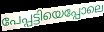
പേപ്പട്ടിയെപ്പോലെ